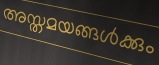
അസ്തമയങ്ങൾക്കും